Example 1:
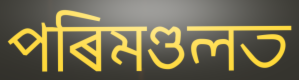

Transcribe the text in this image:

পৰিমণ্ডলত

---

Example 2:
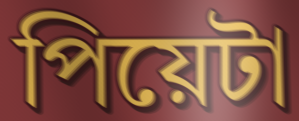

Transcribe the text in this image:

পিয়েটা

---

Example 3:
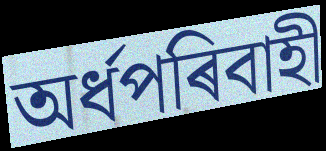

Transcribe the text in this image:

অৰ্ধপৰিবাহী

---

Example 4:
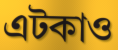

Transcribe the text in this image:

এটকাও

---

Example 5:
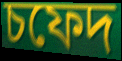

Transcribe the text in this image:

চফেদ